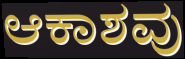
ಆಕಾಶವು